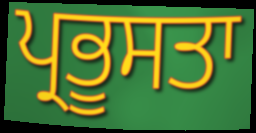
ਪ੍ਰਭੂਸਤਾ